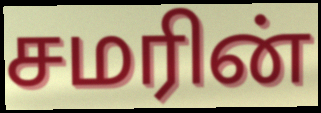
சமரின்